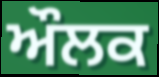
ਔਲਕ